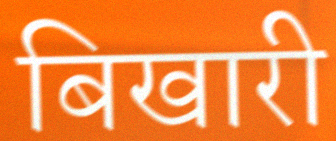
बिखारी